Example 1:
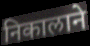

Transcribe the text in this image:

निकालाने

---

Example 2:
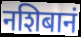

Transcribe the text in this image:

नशिबानं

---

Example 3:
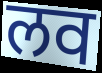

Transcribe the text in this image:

लव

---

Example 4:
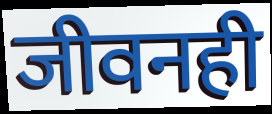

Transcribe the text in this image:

जीवनही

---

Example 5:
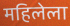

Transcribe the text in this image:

महिलेला